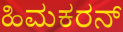
ಹಿಮಕರನ್